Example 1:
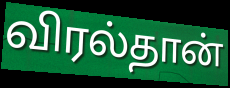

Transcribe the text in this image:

விரல்தான்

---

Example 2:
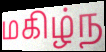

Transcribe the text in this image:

மகிழ்ந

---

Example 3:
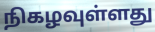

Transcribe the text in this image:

நிகழவுள்ளது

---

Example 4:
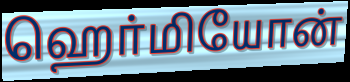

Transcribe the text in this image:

ஹெர்மியோன்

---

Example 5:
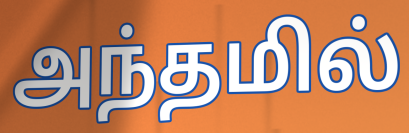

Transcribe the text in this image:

அந்தமில்